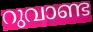
റുവാണ്ട